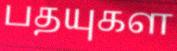
பதயுகள